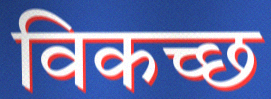
विकच्छ